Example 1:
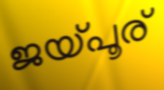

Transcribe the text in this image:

ജയ്പൂര്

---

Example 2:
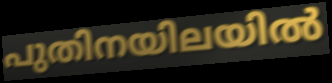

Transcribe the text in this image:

പുതിനയിലയിൽ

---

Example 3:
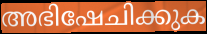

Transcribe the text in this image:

അഭിഷേചിക്കുക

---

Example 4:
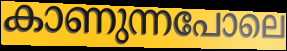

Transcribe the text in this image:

കാണുന്നപോലെ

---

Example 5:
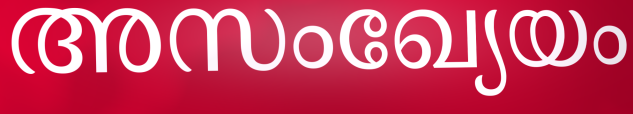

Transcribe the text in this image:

അസംഖ്യേയം